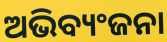
ଅଭିବ୍ୟଂଜନା